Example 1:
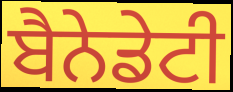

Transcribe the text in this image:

ਬੈਨੇਡੇਟੀ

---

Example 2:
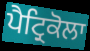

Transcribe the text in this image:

ਪੈਟ੍ਰਿਕੋਲਾ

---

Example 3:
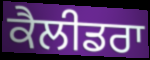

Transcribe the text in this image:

ਕੈਲੀਡਰਾ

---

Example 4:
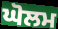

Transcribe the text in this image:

ਘੋਲਮ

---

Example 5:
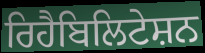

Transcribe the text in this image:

ਰਿਹੈਬਿਲਿਟੇਸ਼ਨ